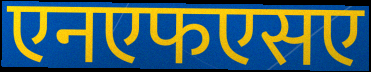
एनएफएसए